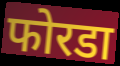
फोरडा